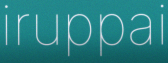
iruppai